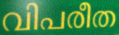
വിപരീത